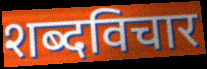
शब्दविचार